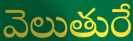
వెలుతురే